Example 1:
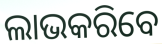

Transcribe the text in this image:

ଲାଭକରିବେ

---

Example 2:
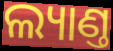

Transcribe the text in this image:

ଲ୍ୟାଣ୍ତ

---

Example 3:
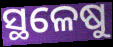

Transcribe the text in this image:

ସ୍ଥଳେଷୁ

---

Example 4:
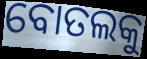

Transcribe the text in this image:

ବୋତଲକୁ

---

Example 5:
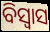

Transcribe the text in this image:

ବିସ୍ବାସ